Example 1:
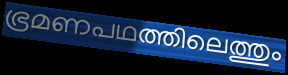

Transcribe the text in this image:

ഭ്രമണപഥത്തിലെത്തും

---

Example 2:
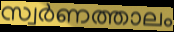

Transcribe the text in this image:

സ്വർണത്താലം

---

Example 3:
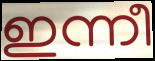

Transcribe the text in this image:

ഇന്നീ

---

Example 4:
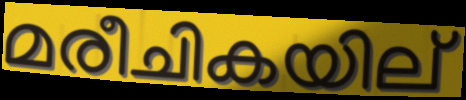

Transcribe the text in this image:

മരീചികയില്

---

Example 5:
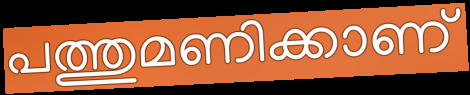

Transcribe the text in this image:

പത്തുമണിക്കാണ്